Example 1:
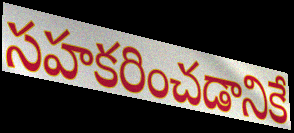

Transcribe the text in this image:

సహకరించడానికే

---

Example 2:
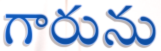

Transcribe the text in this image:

గారును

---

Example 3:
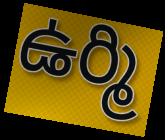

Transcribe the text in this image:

ఉర్మి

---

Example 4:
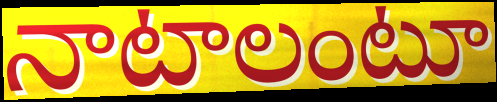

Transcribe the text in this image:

నాటాలంటూ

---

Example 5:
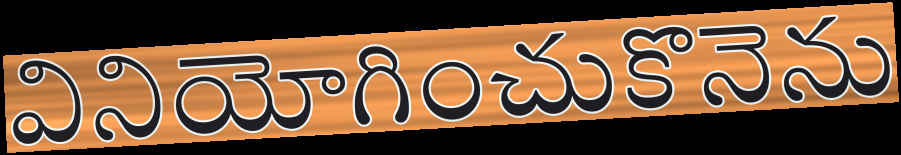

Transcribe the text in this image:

వినియోగించుకొనెను